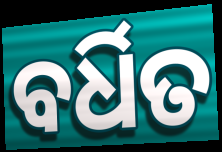
ବର୍ଧିତ